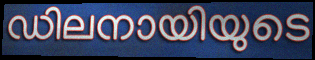
ഡിലനായിയുടെ